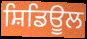
ਸ਼ਿਡਿਊਲ